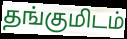
தங்குமிடம்